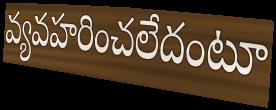
వ్యవహరించలేదంటూ